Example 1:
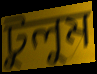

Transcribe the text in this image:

টুলুম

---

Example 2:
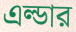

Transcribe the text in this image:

এল্ডার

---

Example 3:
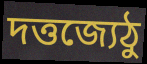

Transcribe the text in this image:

দত্তজ্যেঠু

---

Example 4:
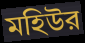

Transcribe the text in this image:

মহিউর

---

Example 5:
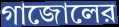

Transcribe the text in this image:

গাজোলের